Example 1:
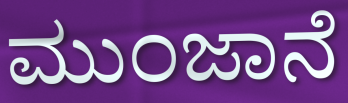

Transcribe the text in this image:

ಮುಂಜಾನೆ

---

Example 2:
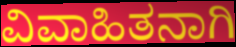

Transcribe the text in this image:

ವಿವಾಹಿತನಾಗಿ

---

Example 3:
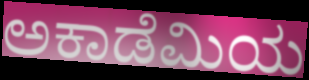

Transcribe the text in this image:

ಅಕಾಡೆಮಿಯ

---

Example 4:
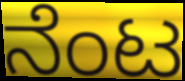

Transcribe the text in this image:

ನೆಂಟ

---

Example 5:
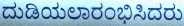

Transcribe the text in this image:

ದುಡಿಯಲಾರಂಭಿಸಿದರು